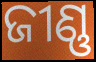
ଜୀଣ୍ଣ